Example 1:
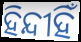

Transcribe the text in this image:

ହିନ୍ଦୀହିଁ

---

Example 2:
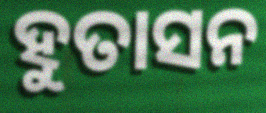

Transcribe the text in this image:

ହୁତାସନ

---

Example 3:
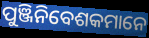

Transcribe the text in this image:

ପୁଞ୍ଜିନିବେଶକମାନେ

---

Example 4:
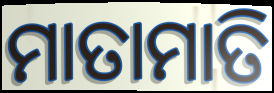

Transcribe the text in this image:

ମାତାମାତି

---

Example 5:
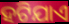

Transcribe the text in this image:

ହଟିଯାଏ